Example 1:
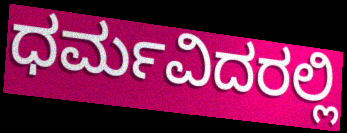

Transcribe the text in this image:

ಧರ್ಮವಿದರಲ್ಲಿ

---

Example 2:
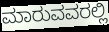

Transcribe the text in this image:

ಮಾರುವವರಲ್ಲಿ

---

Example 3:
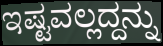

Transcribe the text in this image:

ಇಷ್ಟವಲ್ಲದ್ದನ್ನು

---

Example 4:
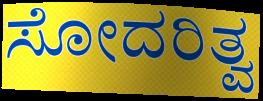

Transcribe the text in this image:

ಸೋದರಿತ್ವ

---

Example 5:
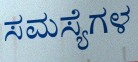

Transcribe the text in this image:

ಸಮಸ್ಯೆಗಳ